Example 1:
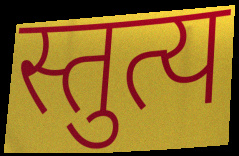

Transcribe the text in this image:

स्तुत्य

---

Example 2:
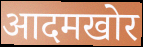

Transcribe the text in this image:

आदमखोर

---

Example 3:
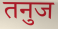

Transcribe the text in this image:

तनुज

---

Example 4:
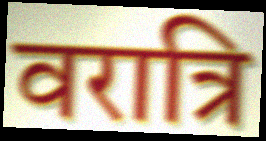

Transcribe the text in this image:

वरात्रि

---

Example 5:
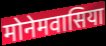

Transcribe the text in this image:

मोनेमवासिया